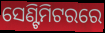
ସେଣ୍ଟିମିଟରରେ